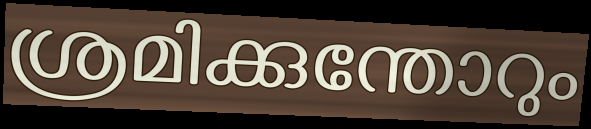
ശ്രമിക്കുന്തോറും